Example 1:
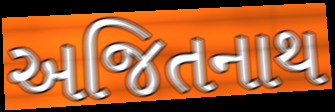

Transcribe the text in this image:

અજિતનાથ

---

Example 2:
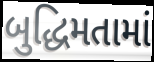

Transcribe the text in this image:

બુદ્ધિમતામાં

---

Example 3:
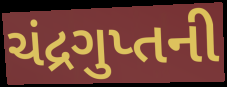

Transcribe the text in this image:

ચંદ્રગુપ્તની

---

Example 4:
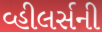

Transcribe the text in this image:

વ્હીલર્સની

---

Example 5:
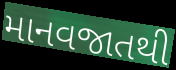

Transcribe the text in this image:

માનવજાતથી